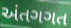
અંતગગત